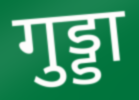
गुड्डा